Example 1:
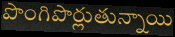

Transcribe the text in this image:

పొంగిపొర్లుతున్నాయి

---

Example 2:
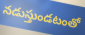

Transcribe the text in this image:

నడుస్తుండటంతో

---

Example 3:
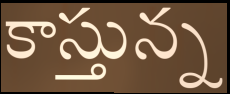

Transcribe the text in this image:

కాస్తున్న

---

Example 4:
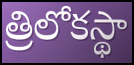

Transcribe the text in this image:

త్రిలోకస్థా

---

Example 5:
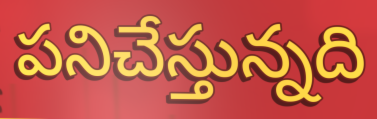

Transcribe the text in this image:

పనిచేస్తున్నది